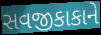
સવજીકાકાને